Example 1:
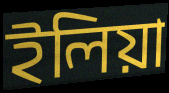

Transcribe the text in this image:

ইলিয়া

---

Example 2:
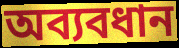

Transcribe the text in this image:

অব্যবধান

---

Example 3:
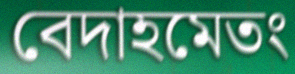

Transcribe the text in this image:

বেদাহমেতং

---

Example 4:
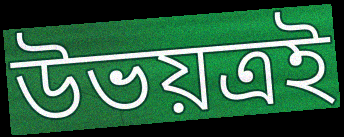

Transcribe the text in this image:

উভয়ত্রই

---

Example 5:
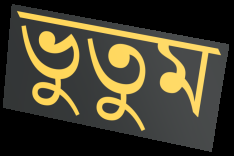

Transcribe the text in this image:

ভুতুম